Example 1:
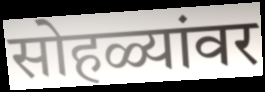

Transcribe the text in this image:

सोहळ्यांवर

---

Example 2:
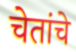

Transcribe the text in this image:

चेतांचे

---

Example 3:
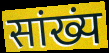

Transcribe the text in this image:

सांख्यं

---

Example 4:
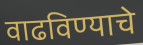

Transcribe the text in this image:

वाढविण्याचे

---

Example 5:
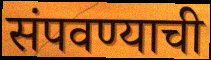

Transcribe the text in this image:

संपवण्याची